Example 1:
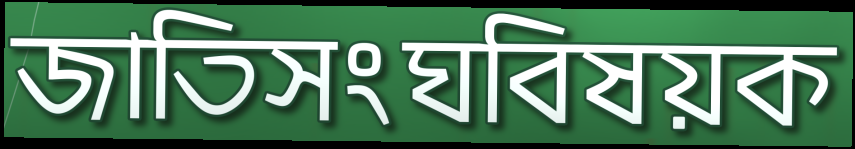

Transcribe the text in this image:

জাতিসংঘবিষয়ক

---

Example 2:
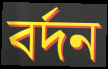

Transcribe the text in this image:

বর্দন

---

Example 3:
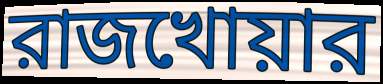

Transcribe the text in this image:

রাজখোয়ার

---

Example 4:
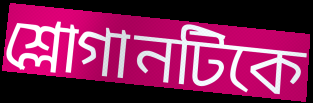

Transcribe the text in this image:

শ্লোগানটিকে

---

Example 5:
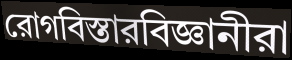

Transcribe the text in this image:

রোগবিস্তারবিজ্ঞানীরা